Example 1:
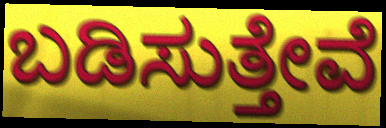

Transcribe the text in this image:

ಬಡಿಸುತ್ತೇವೆ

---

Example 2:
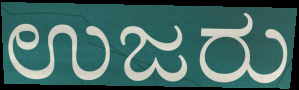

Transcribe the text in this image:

ಉಜರು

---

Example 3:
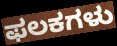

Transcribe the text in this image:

ಫಲಕಗಳು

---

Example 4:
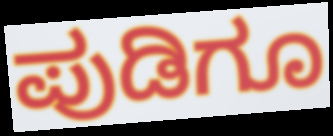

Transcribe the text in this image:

ಪುಡಿಗೂ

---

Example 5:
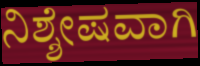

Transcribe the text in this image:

ನಿಶ್ಶೇಷವಾಗಿ